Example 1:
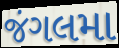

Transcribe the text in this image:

જંગલમા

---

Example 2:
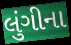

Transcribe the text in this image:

લુંગીના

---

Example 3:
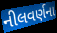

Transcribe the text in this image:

નીલવર્ણના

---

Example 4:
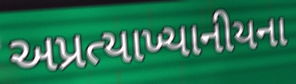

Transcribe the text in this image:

અપ્રત્યાખ્યાનીયના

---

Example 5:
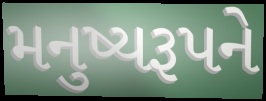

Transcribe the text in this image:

મનુષ્યરૂપને